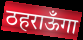
ठहराऊँगा